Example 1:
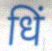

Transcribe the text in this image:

धिं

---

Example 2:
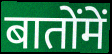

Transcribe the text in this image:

बातोंमें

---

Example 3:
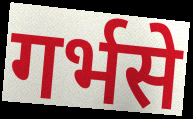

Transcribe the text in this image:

गर्भसे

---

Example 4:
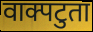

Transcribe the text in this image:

वाक्पटुता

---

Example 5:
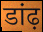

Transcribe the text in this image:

डांढ़